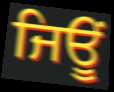
ਜਿਊਂ